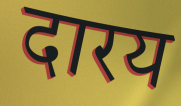
दारय